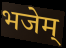
भजेम्